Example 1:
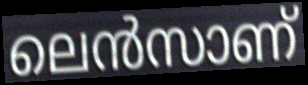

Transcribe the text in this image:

ലെൻസാണ്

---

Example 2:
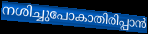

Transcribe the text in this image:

നശിച്ചുപോകാതിരിപ്പാൻ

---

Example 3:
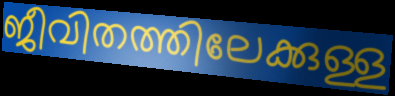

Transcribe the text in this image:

ജീവിതത്തിലേക്കുള്ള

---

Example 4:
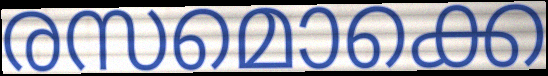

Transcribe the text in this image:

രസമൊക്കെ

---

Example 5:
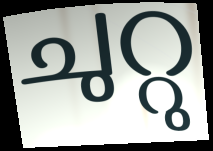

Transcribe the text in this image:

ചുറ്റു